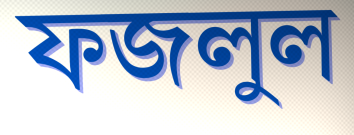
ফজলুল